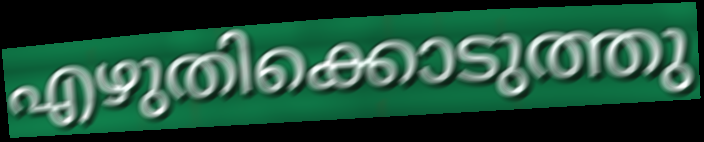
എഴുതിക്കൊടുത്തു